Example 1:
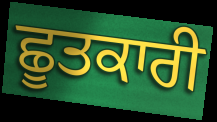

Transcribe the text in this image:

ਛੂਤਕਾਰੀ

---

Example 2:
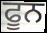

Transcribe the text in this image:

ਫੂਨ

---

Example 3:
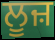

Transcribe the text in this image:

ਲੂਜ਼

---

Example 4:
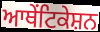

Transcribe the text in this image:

ਆਥੇਂਟਿਕੇਸ਼ਨ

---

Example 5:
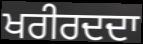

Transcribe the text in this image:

ਖਰੀਰਦਦਾ